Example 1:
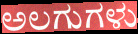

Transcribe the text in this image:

ಅಲಗುಗಳು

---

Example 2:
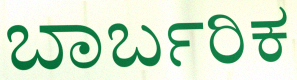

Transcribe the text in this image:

ಬಾರ್ಬರಿಕ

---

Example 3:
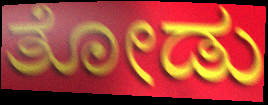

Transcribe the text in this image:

ತೋಡು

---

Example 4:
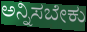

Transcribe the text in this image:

ಅನ್ನಿಸಬೇಕು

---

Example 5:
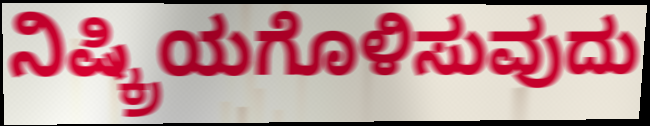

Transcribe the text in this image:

ನಿಷ್ಕ್ರಿಯಗೊಳಿಸುವುದು